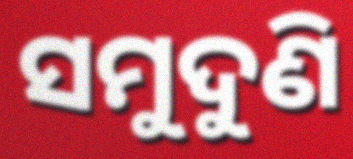
ସମୁଦୁଣି